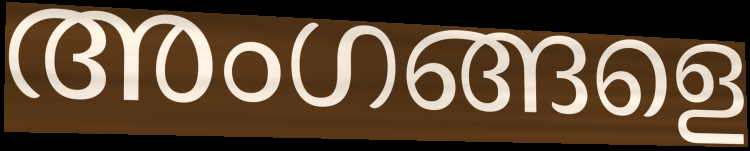
അംഗങ്ങളെ